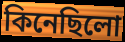
কিনেছিলো